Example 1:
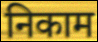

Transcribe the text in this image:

निकाम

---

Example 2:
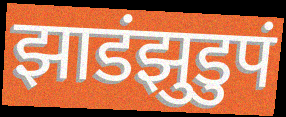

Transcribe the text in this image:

झाडंझुडुपं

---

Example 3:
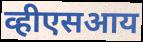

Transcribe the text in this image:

व्हीएसआय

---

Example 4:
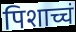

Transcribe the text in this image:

पिशाच्चं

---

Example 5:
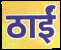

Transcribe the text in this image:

ठाईं